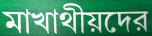
মাখাথীয়দের